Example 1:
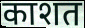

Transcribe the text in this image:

काशत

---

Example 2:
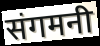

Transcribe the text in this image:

संगमनी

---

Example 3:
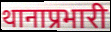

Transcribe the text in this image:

थानाप्रभारी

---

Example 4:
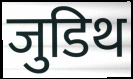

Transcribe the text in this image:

जुडिथ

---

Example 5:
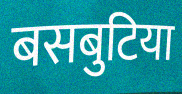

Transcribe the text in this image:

बसबुटिया